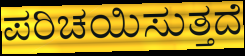
ಪರಿಚಯಿಸುತ್ತದೆ